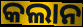
କଲାନ